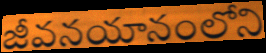
జీవనయానంలోని